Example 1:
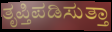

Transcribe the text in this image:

ತೃಪ್ತಿಪಡಿಸುತ್ತಾ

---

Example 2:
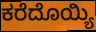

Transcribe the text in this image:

ಕರೆದೊಯ್ಯಿ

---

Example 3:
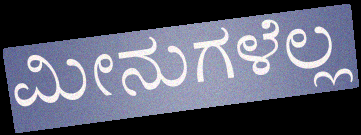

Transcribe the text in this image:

ಮೀನುಗಳೆಲ್ಲ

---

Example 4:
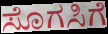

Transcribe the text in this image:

ಸೊಗಸಿಗೆ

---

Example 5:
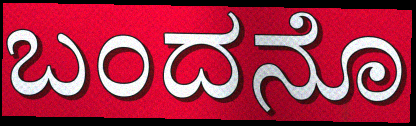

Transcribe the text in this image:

ಬಂದನೊ